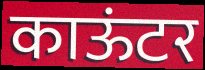
काऊंटर